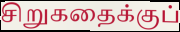
சிறுகதைக்குப்